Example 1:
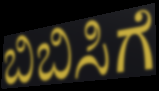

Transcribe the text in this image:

ಬಿಬಿಸಿಗೆ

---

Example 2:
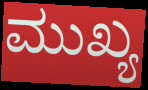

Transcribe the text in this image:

ಮುಖ್ಯ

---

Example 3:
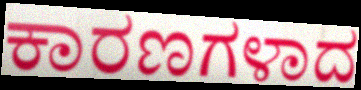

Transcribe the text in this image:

ಕಾರಣಗಳಾದ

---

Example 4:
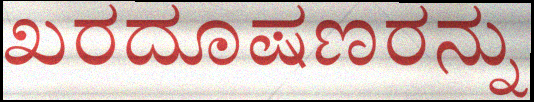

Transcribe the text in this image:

ಖರದೂಷಣರನ್ನು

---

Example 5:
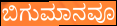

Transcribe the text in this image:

ಬಿಗುಮಾನವೂ